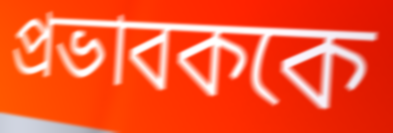
প্রভাবককে